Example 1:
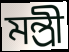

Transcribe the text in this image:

মন্ত্রী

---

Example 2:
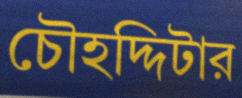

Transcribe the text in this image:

চৌহদ্দিটার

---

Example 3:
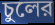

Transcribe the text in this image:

চুলের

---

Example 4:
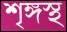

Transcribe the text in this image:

শৃঙ্গস্থ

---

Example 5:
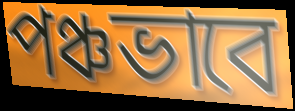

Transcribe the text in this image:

পঞ্চভাবে